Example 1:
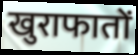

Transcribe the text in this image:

खुराफातों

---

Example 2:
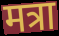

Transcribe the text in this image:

मत्रा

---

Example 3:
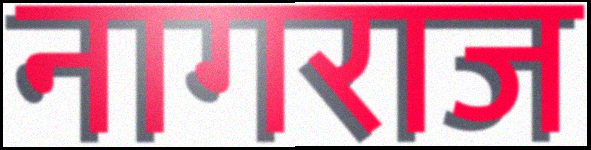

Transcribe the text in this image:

नागराज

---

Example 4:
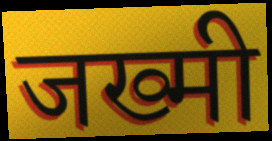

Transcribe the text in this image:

जख्मी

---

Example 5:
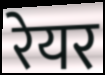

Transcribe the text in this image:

रेयर